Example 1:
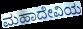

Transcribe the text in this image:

ಮಹಾದೇವಿಯ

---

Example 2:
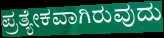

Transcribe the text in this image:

ಪ್ರತ್ಯೇಕವಾಗಿರುವುದು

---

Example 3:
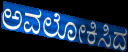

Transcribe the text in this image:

ಅವಲೋಕಿಸಿದ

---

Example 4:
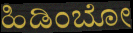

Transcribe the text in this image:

ಹಿಡಿಂಬೋ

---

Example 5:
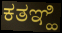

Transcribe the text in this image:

ಕತಞ್ಹಿ